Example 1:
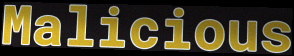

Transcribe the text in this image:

Malicious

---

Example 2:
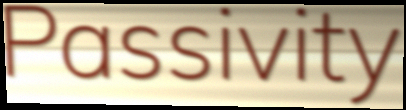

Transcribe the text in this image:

Passivity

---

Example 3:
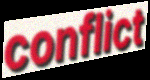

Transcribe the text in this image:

conflict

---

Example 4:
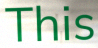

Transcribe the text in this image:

This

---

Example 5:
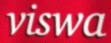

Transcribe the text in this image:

viswa